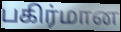
பகிர்மான